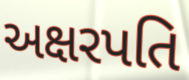
અક્ષરપતિ